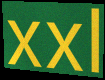
xxl